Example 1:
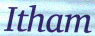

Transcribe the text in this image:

Itham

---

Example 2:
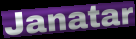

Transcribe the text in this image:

Janatar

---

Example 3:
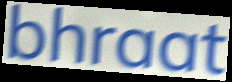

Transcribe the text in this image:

bhraat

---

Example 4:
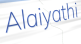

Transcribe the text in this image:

Alaiyathi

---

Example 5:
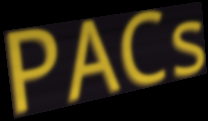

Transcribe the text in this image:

PACs